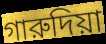
গারুদিয়া